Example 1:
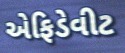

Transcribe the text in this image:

એફિડેવીટ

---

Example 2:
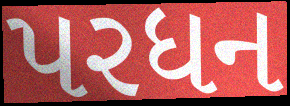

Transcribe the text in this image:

પરધન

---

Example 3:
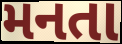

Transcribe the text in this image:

મનતા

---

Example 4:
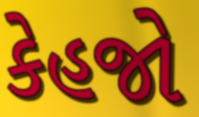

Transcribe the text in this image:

કેહજો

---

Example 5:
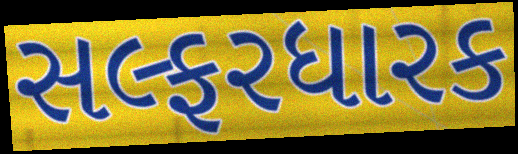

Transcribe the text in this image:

સલ્ફરધારક